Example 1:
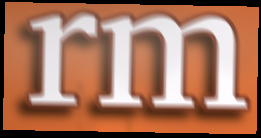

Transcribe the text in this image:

rm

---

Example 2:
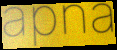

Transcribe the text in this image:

apna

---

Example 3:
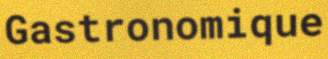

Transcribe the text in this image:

Gastronomique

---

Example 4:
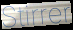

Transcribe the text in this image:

Stirrer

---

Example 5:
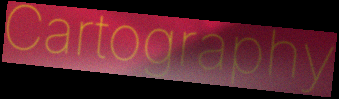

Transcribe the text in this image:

Cartography